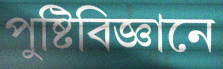
পুষ্টিবিজ্ঞানে